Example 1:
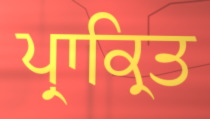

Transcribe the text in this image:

ਪ੍ਰਾਕ੍ਰਿਤ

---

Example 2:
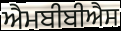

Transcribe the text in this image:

ਐਮਬੀਬੀਐਸ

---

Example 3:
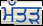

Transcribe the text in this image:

ਮੱਤੜ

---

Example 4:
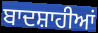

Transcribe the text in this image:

ਬਾਦਸ਼ਾਹੀਆਂ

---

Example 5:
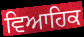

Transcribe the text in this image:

ਵਿਆਹਿਕ